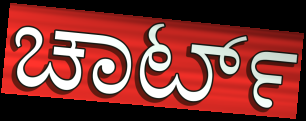
ಚಾರ್ಟ್